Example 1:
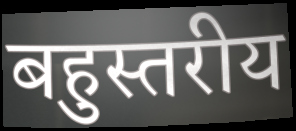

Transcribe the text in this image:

बहुस्तरीय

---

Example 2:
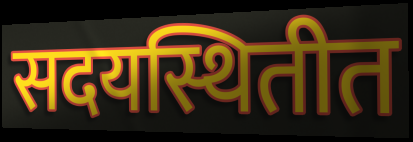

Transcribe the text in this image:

सदयस्थितीत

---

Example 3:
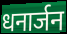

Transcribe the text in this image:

धनार्जन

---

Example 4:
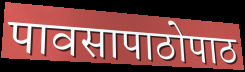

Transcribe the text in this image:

पावसापाठोपाठ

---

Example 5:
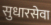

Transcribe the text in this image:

सुधारसेवा